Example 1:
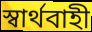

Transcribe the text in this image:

স্বার্থবাহী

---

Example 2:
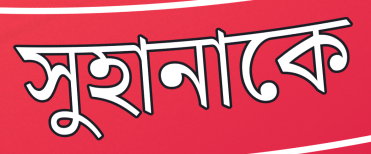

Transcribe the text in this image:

সুহানাকে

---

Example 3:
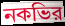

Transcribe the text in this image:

নকভির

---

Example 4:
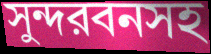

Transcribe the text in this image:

সুন্দরবনসহ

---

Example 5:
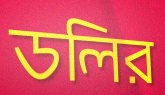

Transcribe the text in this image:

ডলির